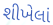
શીખેલાં